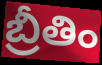
బ్రీతిం